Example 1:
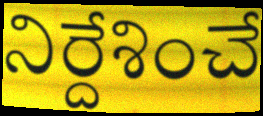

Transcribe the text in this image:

నిర్దేశించే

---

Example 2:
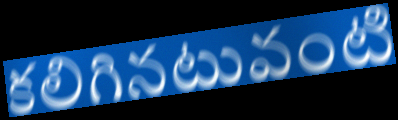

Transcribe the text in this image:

కలిగినటువంటి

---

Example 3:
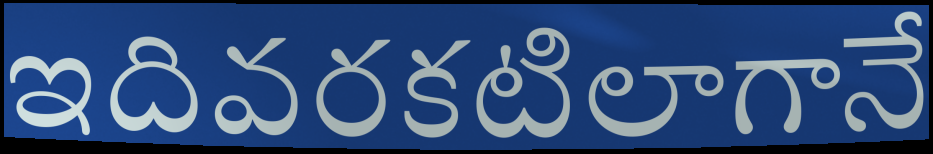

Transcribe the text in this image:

ఇదివరకటిలాగానే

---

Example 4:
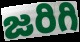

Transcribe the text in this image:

జరిగి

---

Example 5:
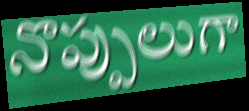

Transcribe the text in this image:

నొప్పులుగా